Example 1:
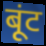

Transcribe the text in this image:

बूंट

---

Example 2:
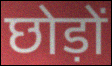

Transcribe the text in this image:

छोड़ों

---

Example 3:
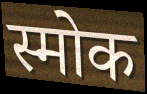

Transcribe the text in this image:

स्मोक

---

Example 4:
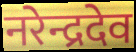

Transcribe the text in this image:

नरेन्द्रदेव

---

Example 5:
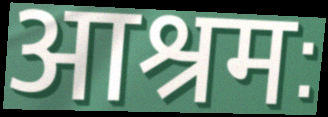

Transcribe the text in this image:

आश्रमः